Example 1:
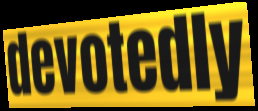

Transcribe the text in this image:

devotedly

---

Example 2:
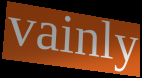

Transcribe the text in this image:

vainly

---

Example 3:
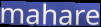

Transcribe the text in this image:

mahare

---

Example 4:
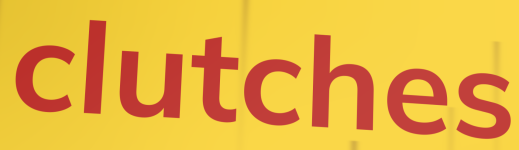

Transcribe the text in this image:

clutches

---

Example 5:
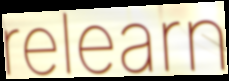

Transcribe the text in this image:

relearn